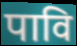
पावि